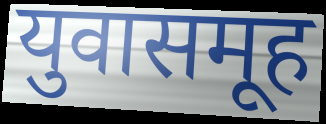
युवासमूह